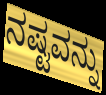
ನಷ್ಟವನ್ನು